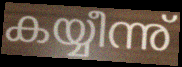
കയ്യീന്നു്